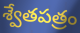
శ్వేతపత్రం